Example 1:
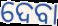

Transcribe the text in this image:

ଦେବା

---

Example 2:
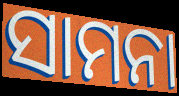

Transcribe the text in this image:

ସାମନା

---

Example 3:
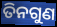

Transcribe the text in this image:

ତିନଗୁଣ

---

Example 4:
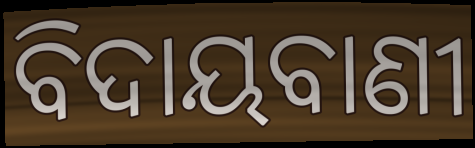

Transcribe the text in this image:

ବିଦାୟବାଣୀ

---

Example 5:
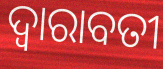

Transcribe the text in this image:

ଦ୍ଵାରାବତୀ